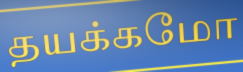
தயக்கமோ